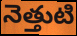
నెత్తుటి